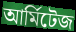
আর্মিটেজ